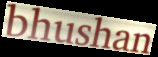
bhushan